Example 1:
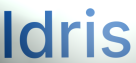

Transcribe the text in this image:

Idris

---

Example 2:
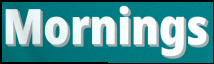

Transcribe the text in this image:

Mornings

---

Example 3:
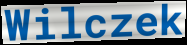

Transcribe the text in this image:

Wilczek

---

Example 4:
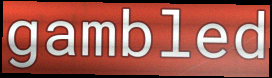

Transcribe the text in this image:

gambled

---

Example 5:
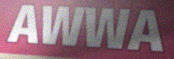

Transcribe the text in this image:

AWWA